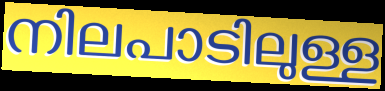
നിലപാടിലുള്ള